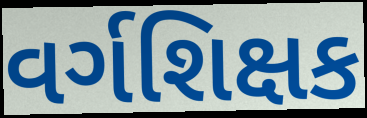
વર્ગશિક્ષક